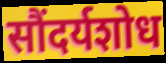
सौंदर्यशोध